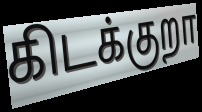
கிடக்குறா